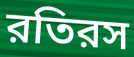
রতিরস